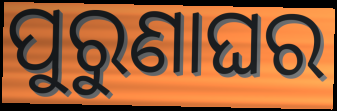
ପୁରୁଣାଘର